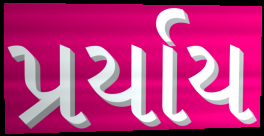
પ્રર્યાય